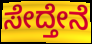
ಸೇದ್ತೇನೆ